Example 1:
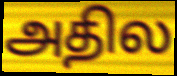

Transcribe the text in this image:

அதில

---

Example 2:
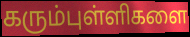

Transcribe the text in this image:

கரும்புள்ளிகளை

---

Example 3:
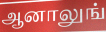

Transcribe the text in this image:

ஆனாலுங்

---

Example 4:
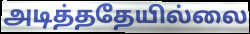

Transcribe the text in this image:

அடித்ததேயில்லை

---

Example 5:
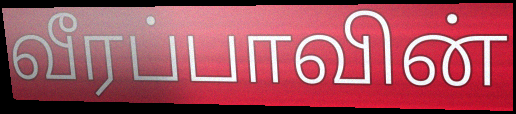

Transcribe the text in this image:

வீரப்பாவின்